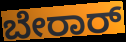
ಬೇರಾರ್